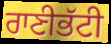
ਰਾਣੀਭੱਟੀ